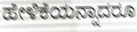
ಹೇಳಿಕೆಯನ್ನಾದರೂ